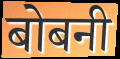
बोबनी